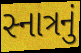
સ્નાત્રનું